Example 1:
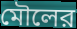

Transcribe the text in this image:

মৌলের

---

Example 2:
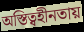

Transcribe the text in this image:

অস্তিত্বহীনতায়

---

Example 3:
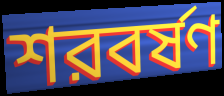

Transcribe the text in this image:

শরবর্ষণ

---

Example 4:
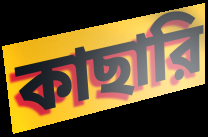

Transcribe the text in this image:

কাছারি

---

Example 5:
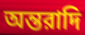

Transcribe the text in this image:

অন্তরাদি